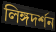
লিঙ্গদর্শন